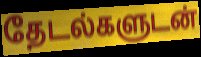
தேடல்களுடன்